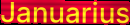
Januarius